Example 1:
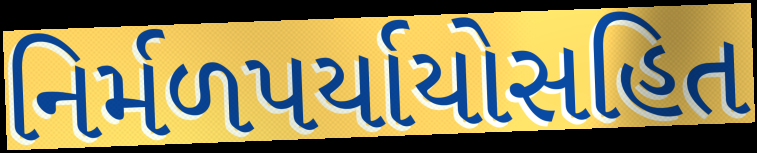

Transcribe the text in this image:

નિર્મળપર્યાયોસહિત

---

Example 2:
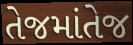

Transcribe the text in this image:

તેજમાંતેજ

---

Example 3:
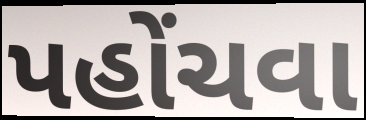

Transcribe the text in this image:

પહોંચવા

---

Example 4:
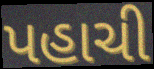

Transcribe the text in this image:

પહાચી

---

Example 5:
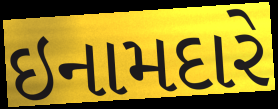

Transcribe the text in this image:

ઇનામદારે